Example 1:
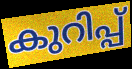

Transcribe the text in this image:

കുറിപ്പ്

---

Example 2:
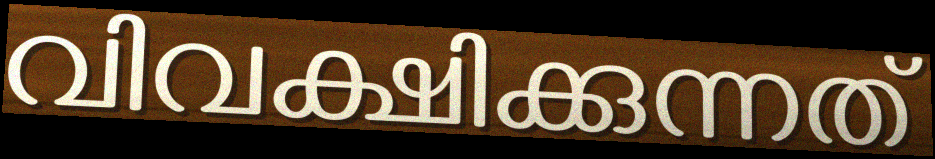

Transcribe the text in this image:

വിവക്ഷിക്കുന്നത്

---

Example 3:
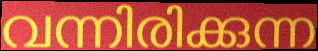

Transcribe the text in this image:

വന്നിരിക്കുന്ന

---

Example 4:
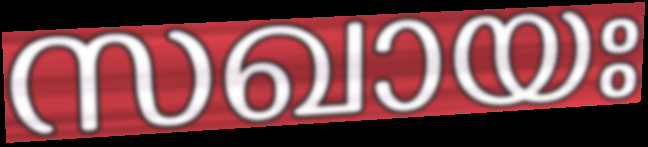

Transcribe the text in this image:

സഖായഃ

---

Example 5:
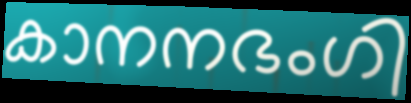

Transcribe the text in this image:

കാനനഭംഗി